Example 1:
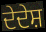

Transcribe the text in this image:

ਦੇਦੇਸ਼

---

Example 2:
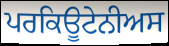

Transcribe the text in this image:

ਪਰਕਿਊਟੇਨੀਅਸ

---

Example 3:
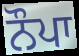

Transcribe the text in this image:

ਨੌਪਾ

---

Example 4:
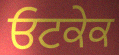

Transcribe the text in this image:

ਓਟਕੇਕ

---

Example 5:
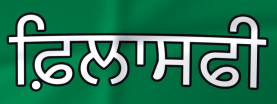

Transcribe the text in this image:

ਫ਼ਿਲਾਸਫੀ